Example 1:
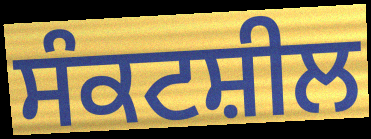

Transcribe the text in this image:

ਸੰਕਟਸ਼ੀਲ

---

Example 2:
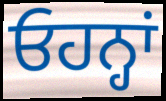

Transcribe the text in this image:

ਓਹਨ੍ਹਾਂ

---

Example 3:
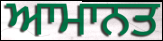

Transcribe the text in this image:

ਆਮਾਨਤ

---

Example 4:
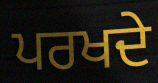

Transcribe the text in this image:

ਪਰਖਦੇ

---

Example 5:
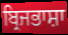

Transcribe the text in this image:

ਬ੍ਰਿਜਭਾਸ਼ਾ